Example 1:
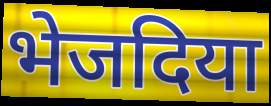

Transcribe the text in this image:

भेजदिया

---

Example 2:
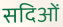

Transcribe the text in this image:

सदिओं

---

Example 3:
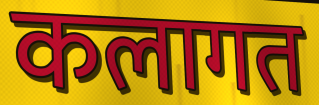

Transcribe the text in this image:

कलागत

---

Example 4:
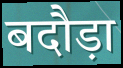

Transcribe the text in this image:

बदौड़ा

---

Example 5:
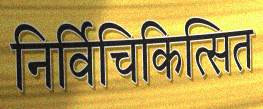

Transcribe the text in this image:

निर्विचिकित्सित